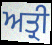
ਅਤ੍ਰੀ